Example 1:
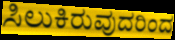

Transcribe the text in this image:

ಸಿಲುಕಿರುವುದರಿಂದ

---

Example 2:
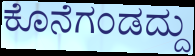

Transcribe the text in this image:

ಕೊನೆಗಂಡದ್ದು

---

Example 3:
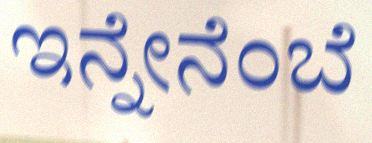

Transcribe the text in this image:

ಇನ್ನೇನೆಂಬೆ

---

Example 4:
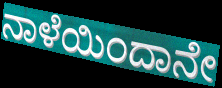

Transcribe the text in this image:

ನಾಳೆಯಿಂದಾನೇ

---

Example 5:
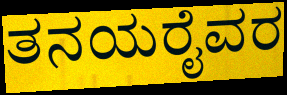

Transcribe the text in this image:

ತನಯರೈವರ